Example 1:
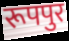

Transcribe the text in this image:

रूपपुर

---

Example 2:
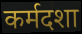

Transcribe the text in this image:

कर्मदशा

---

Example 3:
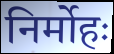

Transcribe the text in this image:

निर्मोहः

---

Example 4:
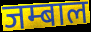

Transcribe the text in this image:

जम्बाल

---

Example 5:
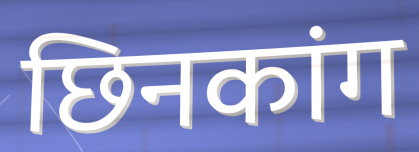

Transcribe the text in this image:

छिनकांग